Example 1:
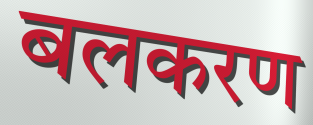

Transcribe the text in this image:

बलकरण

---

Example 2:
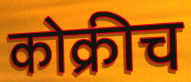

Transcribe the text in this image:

कोक्रीच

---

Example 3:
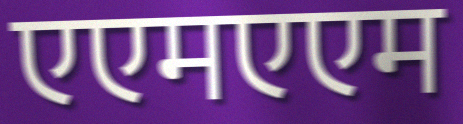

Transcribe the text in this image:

एएमएएम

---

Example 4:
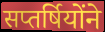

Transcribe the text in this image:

सप्तर्षियोंने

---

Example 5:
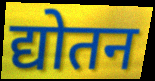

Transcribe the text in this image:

द्योतन